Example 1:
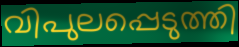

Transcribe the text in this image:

വിപുലപ്പെടുത്തി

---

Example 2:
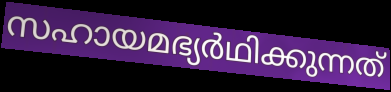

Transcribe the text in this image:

സഹായമഭ്യർഥിക്കുന്നത്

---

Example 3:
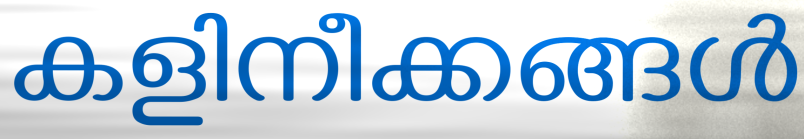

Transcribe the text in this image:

കളിനീക്കങ്ങൾ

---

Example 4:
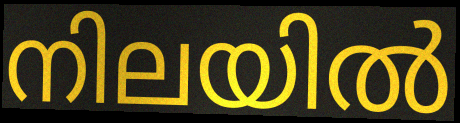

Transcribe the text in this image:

നിലയിൽ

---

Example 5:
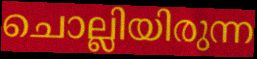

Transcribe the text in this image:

ചൊല്ലിയിരുന്ന